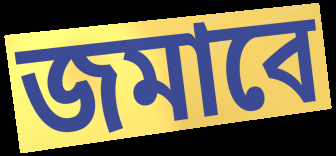
জমাবে